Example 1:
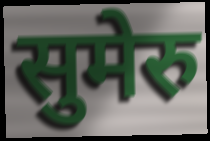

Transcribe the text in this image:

सुमेरु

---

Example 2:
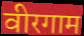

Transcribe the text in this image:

वीरगाम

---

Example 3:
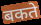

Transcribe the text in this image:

बकते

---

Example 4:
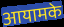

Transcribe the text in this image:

आयामके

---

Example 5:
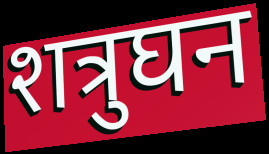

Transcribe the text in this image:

शत्रुघन